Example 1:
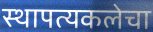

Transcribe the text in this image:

स्थापत्यकलेचा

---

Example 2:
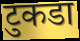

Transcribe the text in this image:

टुकडा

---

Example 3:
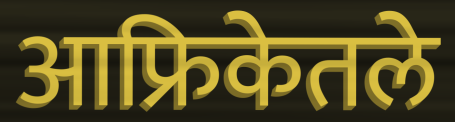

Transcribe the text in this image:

आफ्रिकेतले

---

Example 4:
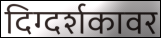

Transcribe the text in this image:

दिग्दर्शकावर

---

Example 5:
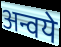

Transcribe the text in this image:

अन्‍वये